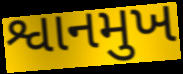
શ્વાનમુખ